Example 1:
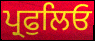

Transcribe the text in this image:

ਪ੍ਰਫੁਲਿਓ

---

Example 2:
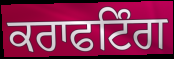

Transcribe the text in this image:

ਕਰਾਫਟਿੰਗ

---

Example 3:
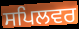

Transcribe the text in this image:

ਸਪਿਲਵਰ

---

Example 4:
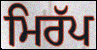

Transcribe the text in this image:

ਮਿਰੱਪ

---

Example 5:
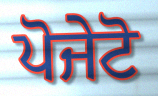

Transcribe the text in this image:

ਪੋਜੇਟੋ